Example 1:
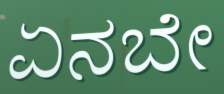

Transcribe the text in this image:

ಏನಬೇ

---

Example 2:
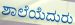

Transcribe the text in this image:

ಶಾಲೆಯೆದುರು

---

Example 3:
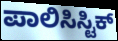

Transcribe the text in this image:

ಪಾಲಿಸಿಸ್ಟಿಕ್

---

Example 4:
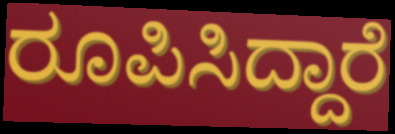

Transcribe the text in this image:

ರೂಪಿಸಿದ್ದಾರೆ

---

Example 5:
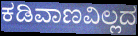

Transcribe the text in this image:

ಕಡಿವಾಣವಿಲ್ಲದ